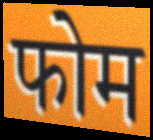
फोम